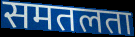
समतलता